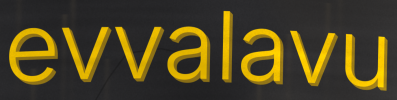
evvalavu